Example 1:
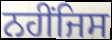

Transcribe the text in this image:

ਨਹੀਂਜਿਸ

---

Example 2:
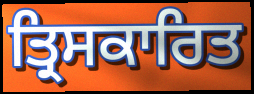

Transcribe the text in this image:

ਤ੍ਰਿਸਕਾਰਿਤ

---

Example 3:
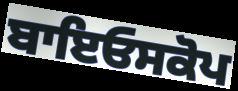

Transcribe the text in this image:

ਬਾਇਓਸਕੋਪ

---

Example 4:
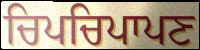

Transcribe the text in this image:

ਚਿਪਚਿਪਾਪਣ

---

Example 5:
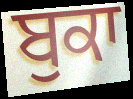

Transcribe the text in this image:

ਬੁਕਾ